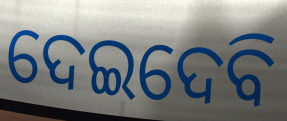
ଦେଇଦେବି